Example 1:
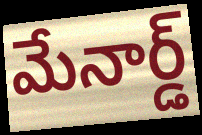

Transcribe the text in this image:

మేనార్డ్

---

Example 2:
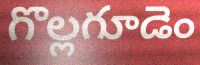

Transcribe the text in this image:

గొల్లగూడెం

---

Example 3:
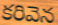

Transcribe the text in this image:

కరివెన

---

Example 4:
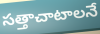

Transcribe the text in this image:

సత్తాచాటాలనే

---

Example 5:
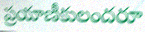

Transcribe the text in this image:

ప్రయాణీకులందరూ